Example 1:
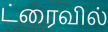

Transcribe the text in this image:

ட்ரைவில்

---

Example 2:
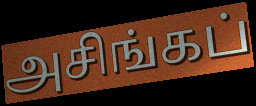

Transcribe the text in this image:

அசிங்கப்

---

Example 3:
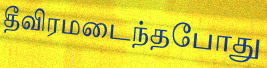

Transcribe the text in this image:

தீவிரமடைந்தபோது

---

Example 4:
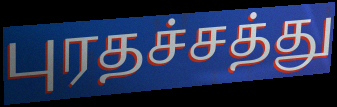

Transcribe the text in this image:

புரதச்சத்து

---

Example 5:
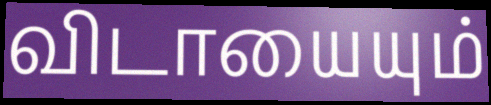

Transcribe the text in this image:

விடாயையும்